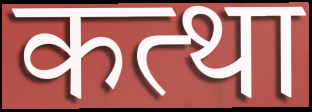
कत्था